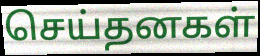
செய்தனகள்